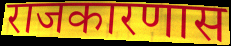
राजकारणास